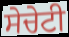
ਸੇਚੇਟੀ